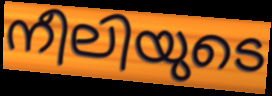
നീലിയുടെ